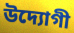
উদ্যোগী